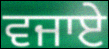
ਵਜਾਏ